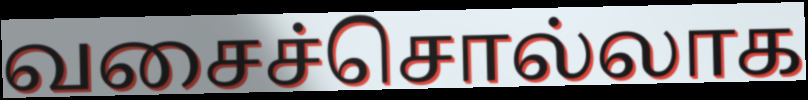
வசைச்சொல்லாக